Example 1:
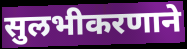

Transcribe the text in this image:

सुलभीकरणाने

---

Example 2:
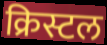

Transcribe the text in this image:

क्रिस्टल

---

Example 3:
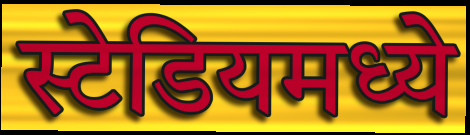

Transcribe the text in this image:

स्टेडियमध्ये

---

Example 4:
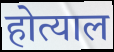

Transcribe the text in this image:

होत्याल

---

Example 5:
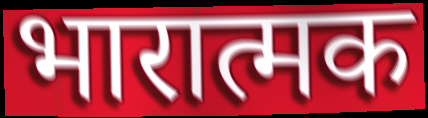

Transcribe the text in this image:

भारात्मक